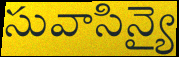
సువాసిన్యై